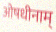
ओषधीनाम्